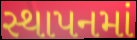
સ્થાપનમાં